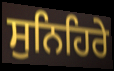
ਸੁਨਿਹਿਰੇ